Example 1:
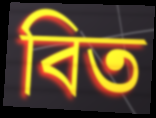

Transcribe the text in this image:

বিত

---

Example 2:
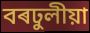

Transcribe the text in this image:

বৰঢুলীয়া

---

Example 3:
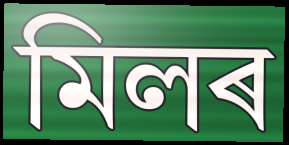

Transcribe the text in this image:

মিলৰ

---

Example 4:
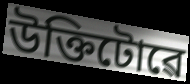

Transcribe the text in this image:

উক্তিটোৱে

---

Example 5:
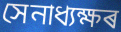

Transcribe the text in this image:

সেনাধ্যক্ষৰ